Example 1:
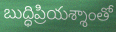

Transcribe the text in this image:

బుద్ధిప్రియశ్శాంతో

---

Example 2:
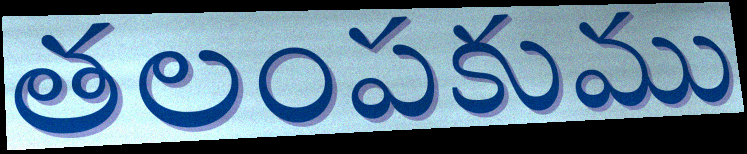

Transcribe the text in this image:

తలంపకుము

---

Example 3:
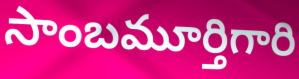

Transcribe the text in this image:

సాంబమూర్తిగారి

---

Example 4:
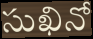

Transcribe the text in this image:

సుఖినో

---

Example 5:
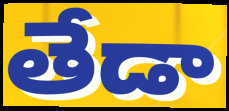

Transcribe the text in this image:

తేడా